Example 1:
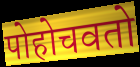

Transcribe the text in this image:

पोहोचवतो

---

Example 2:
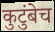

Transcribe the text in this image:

कुटुंबेच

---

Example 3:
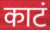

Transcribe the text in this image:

काटं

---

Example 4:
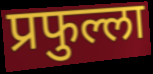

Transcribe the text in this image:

प्रफुल्ला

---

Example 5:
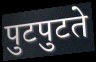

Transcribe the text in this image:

पुटपुटते